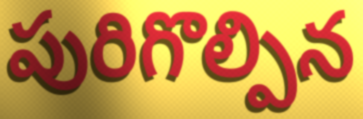
పురిగొల్పిన